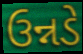
ઉન્નડે